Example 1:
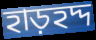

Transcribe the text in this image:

হাড়হদ্দ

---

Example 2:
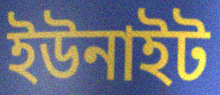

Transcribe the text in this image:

ইউনাইট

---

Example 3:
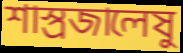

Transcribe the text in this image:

শাস্ত্রজালেষু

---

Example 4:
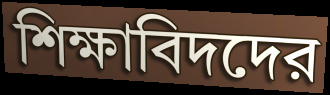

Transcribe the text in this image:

শিক্ষাবিদদের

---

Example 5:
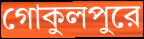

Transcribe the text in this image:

গোকুলপুরে